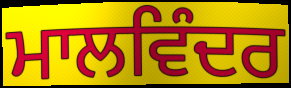
ਮਾਲਵਿੰਦਰ